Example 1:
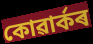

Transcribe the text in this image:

কোৱাৰ্কৰ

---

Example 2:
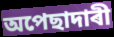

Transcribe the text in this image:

অপেছাদাৰী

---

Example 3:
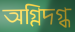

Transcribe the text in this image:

অগ্নিদগ্ধ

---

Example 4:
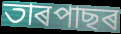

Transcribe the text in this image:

তাৰপাছৰ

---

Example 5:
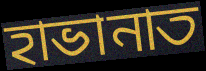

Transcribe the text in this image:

হাভানাত